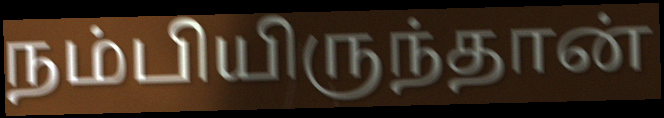
நம்பியிருந்தான்